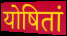
योषितां